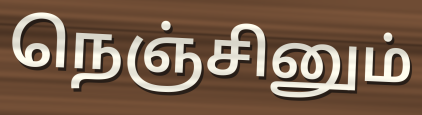
நெஞ்சினும்